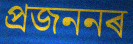
প্ৰজননৰ